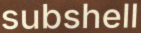
subshell